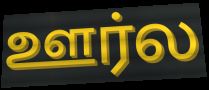
ஊர்ல